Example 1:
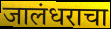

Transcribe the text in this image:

जालंधराचा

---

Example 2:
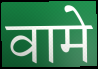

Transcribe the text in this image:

वामे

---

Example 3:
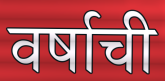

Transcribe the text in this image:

वर्षाची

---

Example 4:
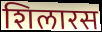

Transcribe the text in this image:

शिलारस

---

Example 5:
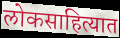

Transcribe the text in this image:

लोकसाहित्यात